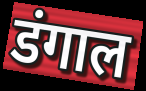
डंगाल